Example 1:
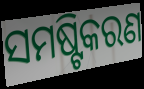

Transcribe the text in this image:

ସମଷ୍ଟିକରଣ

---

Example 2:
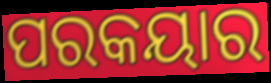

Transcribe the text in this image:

ପରକୟାର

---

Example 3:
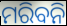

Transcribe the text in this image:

ମରିବନି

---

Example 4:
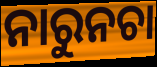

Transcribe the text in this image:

ନାରୁନଚା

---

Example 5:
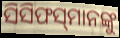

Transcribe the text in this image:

ସିସିଫସ୍‌ମାନଙ୍କୁ